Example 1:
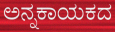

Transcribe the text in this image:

ಅನ್ನಕಾಯಕದ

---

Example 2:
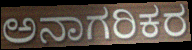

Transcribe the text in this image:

ಅನಾಗರಿಕರ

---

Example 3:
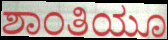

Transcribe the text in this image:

ಶಾಂತಿಯೂ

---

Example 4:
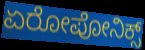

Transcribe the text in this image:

ಏರೋಪೋನಿಕ್ಸ್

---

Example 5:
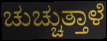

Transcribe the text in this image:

ಚುಚ್ಚುತ್ತಾಳೆ